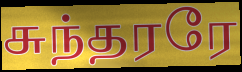
சுந்தரரே